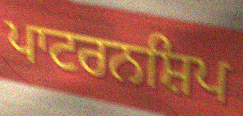
ਪਾਟਰਨਸ਼ਿਪ